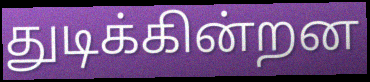
துடிக்கின்றன